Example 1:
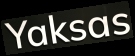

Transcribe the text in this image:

Yaksas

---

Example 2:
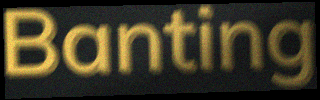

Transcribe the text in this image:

Banting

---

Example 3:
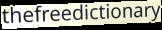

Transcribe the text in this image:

thefreedictionary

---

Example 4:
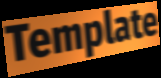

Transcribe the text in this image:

Template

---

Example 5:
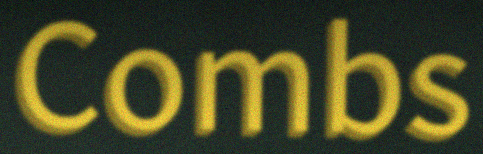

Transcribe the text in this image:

Combs